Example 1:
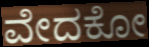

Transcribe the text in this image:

ವೇದಕೋ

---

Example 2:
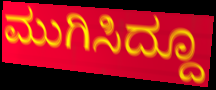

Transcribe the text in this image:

ಮುಗಿಸಿದ್ದೂ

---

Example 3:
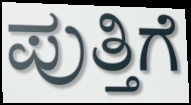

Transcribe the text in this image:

ಪುತ್ತಿಗೆ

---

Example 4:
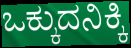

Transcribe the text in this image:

ಒಕ್ಕುದನಿಕ್ಕಿ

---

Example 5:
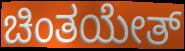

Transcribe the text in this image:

ಚಿಂತಯೇತ್